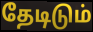
தேடிடும்